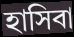
হাসিবা